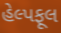
હેલ્પફૂલ